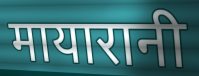
मायारानी